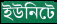
ইউনিটে